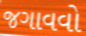
જગાવવો